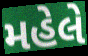
મહેલે